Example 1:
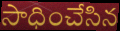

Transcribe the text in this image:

సాధించేసిన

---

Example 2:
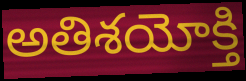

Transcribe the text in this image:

అతిశయోక్తి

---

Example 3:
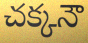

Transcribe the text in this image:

చక్కనౌ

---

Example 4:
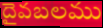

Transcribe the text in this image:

దైవబలము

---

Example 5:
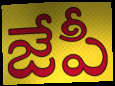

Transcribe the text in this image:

జేపీ